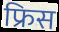
फ्रिस